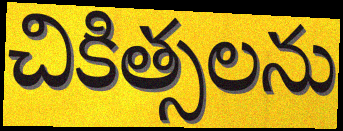
చికిత్సలను